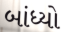
બાંધ્યો